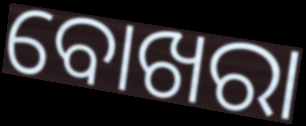
ବୋଖରା